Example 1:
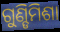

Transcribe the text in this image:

ଗୁଣ୍ଡିମିଶା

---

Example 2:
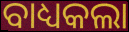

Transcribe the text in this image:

ବାଧ୍ୟକଲା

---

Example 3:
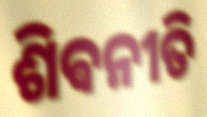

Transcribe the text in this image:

ଶିଵନୀତି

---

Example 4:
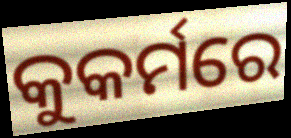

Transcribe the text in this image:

କୁକର୍ମରେ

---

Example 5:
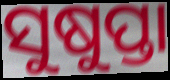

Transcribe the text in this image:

ସୁଷୁପ୍ତା